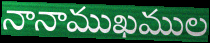
నానాముఖముల